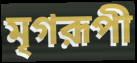
মৃগরূপী